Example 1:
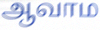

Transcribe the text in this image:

ஆவாம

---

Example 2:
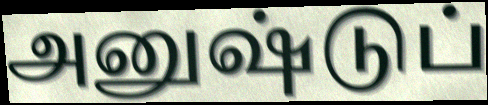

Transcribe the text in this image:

அனுஷ்டுப்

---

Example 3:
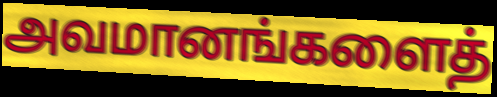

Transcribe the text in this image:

அவமானங்களைத்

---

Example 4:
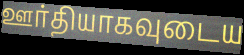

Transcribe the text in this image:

ஊர்தியாகவுடைய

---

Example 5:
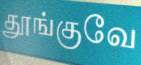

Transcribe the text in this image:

தூங்குவே